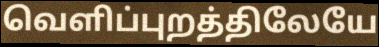
வெளிப்புறத்திலேயே